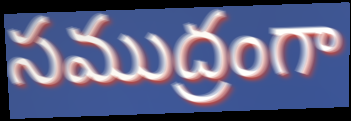
సముద్రంగా